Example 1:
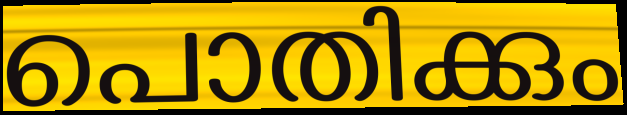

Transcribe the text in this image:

പൊതിക്കും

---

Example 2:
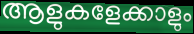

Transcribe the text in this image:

ആളുകളേക്കാളും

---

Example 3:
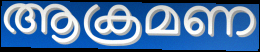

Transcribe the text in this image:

ആക്രമണ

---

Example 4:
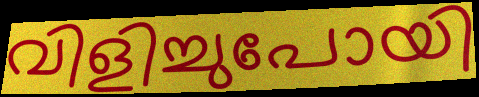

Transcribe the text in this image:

വിളിച്ചുപോയി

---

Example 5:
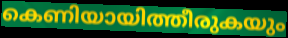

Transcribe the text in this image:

കെണിയായിത്തീരുകയും